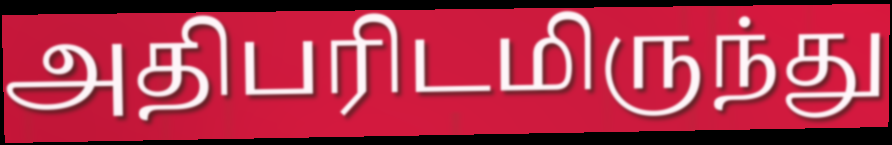
அதிபரிடமிருந்து